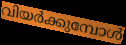
വിയർക്കുമ്പോൾ